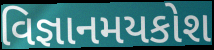
વિજ્ઞાનમયકોશ